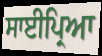
ਸਾਈਪ੍ਰਿਆ